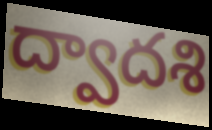
ద్వాదశి